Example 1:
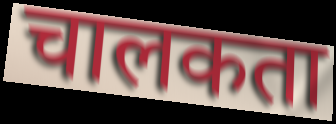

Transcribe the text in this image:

चालकता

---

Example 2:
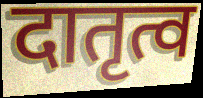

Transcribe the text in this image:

दातृत्व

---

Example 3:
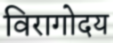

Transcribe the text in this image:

विरागोदय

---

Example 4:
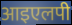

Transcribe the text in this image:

आइएलपी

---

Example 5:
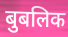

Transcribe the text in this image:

बुबलिक